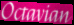
Octavian